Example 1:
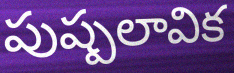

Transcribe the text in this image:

పుష్పలావిక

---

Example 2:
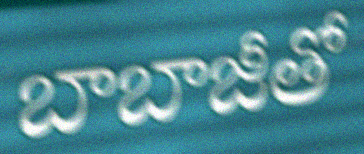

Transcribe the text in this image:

బాబాజీతో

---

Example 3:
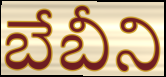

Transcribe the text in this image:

బేబీని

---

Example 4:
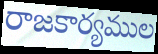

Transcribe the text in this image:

రాజకార్యముల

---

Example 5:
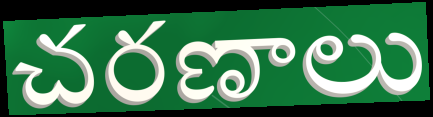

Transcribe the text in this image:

చరణాలు